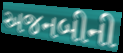
અજનબીની